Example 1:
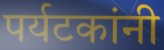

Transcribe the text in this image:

पर्यटकांनी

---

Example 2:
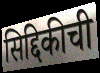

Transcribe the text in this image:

सिद्दिकीची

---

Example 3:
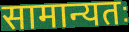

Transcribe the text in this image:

सामान्यतः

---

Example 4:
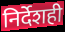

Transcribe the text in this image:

निर्देशही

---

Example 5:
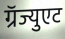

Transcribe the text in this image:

ग्रॅज्युएट